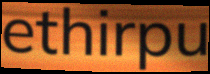
ethirpu